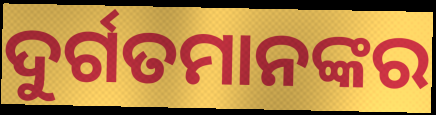
ଦୁର୍ଗତମାନଙ୍କର